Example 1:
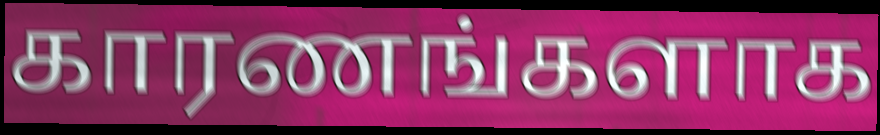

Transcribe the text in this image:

காரணங்களாக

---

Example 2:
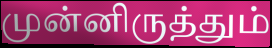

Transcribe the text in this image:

முன்னிருத்தும்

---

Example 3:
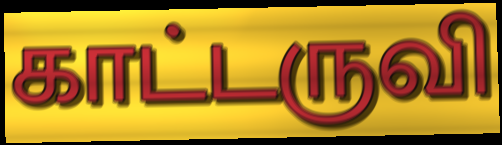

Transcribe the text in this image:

காட்டருவி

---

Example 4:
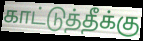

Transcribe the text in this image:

காட்டுத்தீக்கு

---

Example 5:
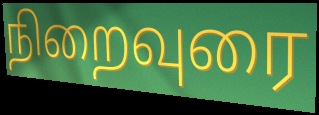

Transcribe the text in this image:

நிறைவுரை